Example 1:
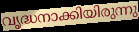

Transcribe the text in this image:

വൃദ്ധനാക്കിയിരുന്നു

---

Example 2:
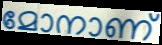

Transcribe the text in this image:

മോനാണ്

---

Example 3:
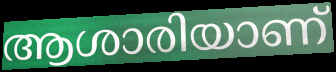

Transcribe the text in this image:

ആശാരിയാണ്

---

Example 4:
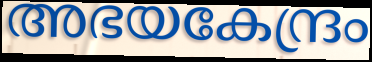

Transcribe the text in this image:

അഭയകേന്ദ്രം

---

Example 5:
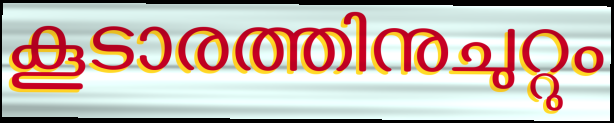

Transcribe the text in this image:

കൂടാരത്തിനുചുറ്റും